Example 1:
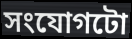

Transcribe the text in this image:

সংযোগটো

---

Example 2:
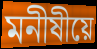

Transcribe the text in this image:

মনীষীয়ে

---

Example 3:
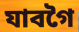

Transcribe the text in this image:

যাবগৈ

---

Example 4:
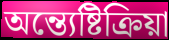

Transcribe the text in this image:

অন্ত্যেষ্টিক্ৰিয়া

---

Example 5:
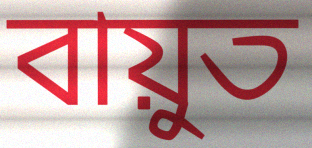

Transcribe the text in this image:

বায়ুত